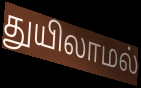
துயிலாமல்